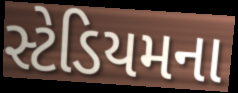
સ્ટેડિયમના